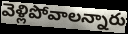
వెళ్లిపోవాలన్నారు